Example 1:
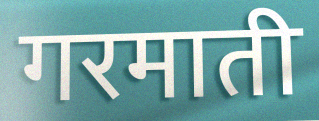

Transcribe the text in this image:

गरमाती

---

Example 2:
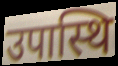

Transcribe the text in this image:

उपास्थि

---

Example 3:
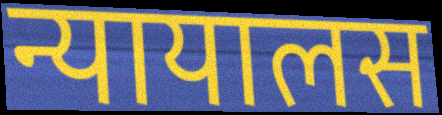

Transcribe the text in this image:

न्यायालस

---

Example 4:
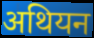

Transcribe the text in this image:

अथियन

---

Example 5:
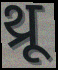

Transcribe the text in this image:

थ्रू